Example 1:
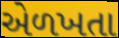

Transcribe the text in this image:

એળખતા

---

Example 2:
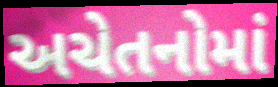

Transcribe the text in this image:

અચેતનોમાં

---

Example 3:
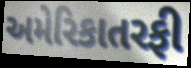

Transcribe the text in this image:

અમેરિકાતરફી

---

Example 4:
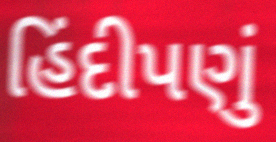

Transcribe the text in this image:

હિંદીપણું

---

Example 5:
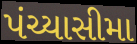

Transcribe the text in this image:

પંચ્યાસીમા